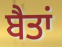
ਬੈਤਾਂ